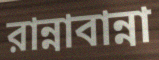
রান্নাবান্না